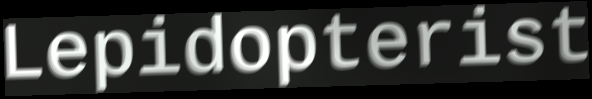
Lepidopterist